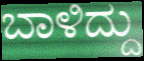
ಬಾಳಿದ್ದು